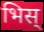
भिस्